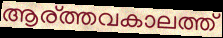
ആര്ത്തവകാലത്ത്